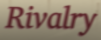
Rivalry